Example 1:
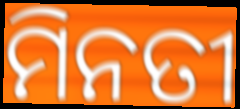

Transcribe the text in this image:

ମିନତୀ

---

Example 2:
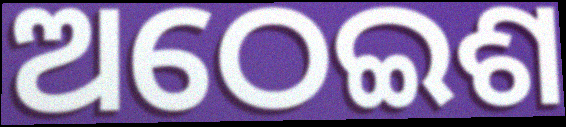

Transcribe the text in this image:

ଅଠେଇଶ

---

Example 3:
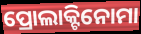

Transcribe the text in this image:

ପ୍ରୋଲାକ୍ଟିନୋମା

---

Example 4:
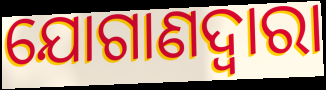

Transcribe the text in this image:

ଯୋଗାଣଦ୍ଵାରା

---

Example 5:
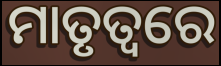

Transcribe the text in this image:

ମାତୃତ୍ୱରେ